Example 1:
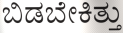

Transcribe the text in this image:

ಬಿಡಬೇಕಿತ್ತು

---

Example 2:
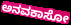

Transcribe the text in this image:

ಅನವಕಾಸೋ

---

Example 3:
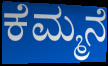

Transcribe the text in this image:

ಕೆಮ್ಮನೆ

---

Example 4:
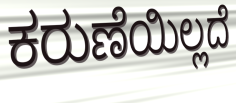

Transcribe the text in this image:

ಕರುಣೆಯಿಲ್ಲದೆ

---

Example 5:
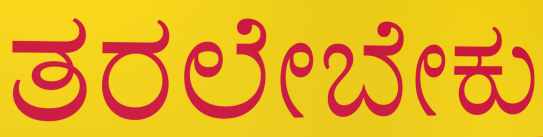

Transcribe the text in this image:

ತರಲೇಬೇಕು